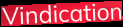
Vindication